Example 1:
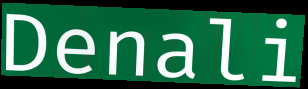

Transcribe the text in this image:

Denali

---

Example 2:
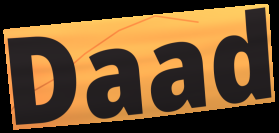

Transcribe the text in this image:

Daad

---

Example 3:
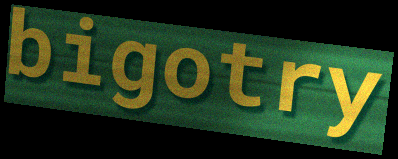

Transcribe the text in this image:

bigotry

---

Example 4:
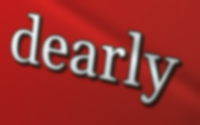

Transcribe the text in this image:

dearly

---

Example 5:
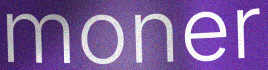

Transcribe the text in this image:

moner